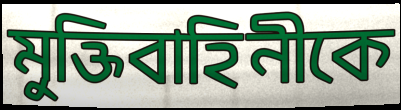
মুক্তিবাহিনীকে